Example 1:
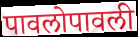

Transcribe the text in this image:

पावलोपावली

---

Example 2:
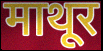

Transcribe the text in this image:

माथूर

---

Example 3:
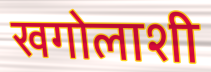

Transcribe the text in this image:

खगोलाशी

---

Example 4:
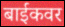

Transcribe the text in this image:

बाईकवर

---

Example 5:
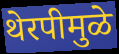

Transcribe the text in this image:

थेरपीमुळे